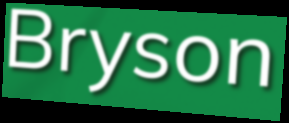
Bryson